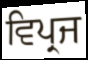
ਵਿਪ੍ਰਜ